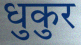
धुकुर